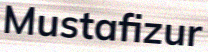
Mustafizur